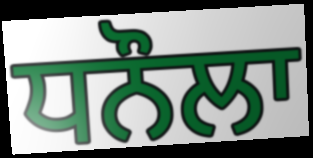
ਧਨੌਲਾ